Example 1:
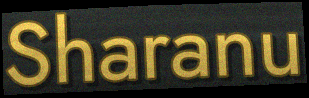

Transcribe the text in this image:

Sharanu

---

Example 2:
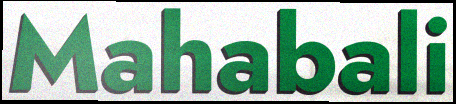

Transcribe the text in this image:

Mahabali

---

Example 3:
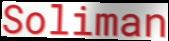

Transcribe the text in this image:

Soliman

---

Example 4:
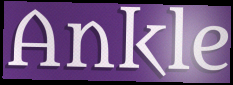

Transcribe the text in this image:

Ankle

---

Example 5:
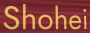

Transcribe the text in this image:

Shohei